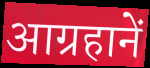
आग्रहानें